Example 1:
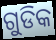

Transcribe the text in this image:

ଗୁଡିକ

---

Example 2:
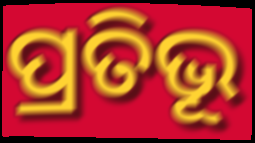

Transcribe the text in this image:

ପ୍ରତିଭୂ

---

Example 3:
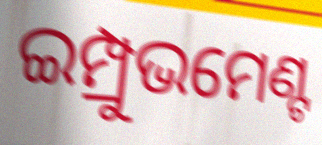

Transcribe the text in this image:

ଇମ୍ପ୍ରୁଭମେଣ୍ଟ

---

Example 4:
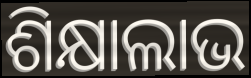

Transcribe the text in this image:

ଶିକ୍ଷାଲାଭ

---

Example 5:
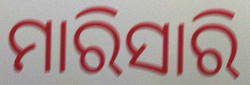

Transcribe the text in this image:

ମାରିସାରି